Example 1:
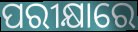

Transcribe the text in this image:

ପରୀକ୍ଷାରେ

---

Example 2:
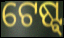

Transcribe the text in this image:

ଟେଷ୍ଟ୍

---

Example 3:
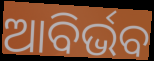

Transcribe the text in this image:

ଆବିର୍ଭବ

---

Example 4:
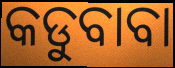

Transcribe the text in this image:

କଡୁବାବା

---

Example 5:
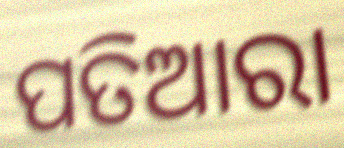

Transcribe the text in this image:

ପତିଆରା